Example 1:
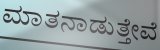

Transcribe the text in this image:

ಮಾತನಾಡುತ್ತೇವೆ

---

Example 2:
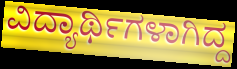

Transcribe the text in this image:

ವಿದ್ಯಾರ್ಥಿಗಳಾಗಿದ್ದ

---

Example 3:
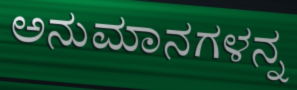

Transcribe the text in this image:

ಅನುಮಾನಗಳನ್ನ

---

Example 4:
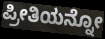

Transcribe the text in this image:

ಪ್ರೀತಿಯನ್ನೋ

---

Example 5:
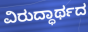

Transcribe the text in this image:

ವಿರುದ್ಧಾರ್ಥದ